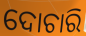
ଦୋଚାରି